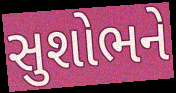
સુશોભને